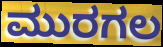
ಮುರಗಲ